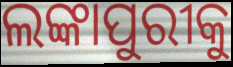
ଲଙ୍କାପୁରୀକୁ